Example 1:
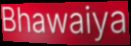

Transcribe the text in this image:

Bhawaiya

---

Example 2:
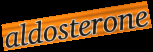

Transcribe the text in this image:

aldosterone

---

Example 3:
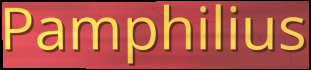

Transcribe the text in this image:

Pamphilius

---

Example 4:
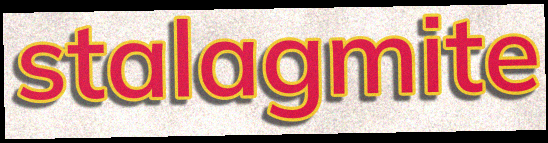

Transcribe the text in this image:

stalagmite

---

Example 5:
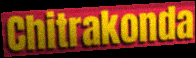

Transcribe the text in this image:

Chitrakonda